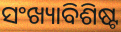
ସଂଖ୍ୟାବିଶିଷ୍ଟ